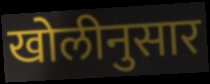
खोलीनुसार